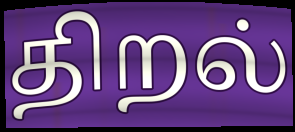
திறல்